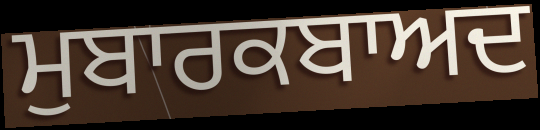
ਮੁਬਾਰਕਬਾਅਦ